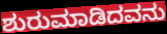
ಶುರುಮಾಡಿದವನು